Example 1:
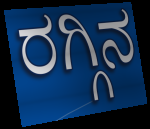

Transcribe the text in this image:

ರಗ್ಗಿನ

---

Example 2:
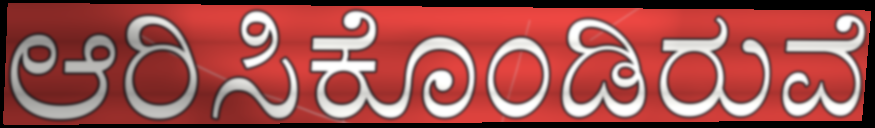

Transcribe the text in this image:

ಆರಿಸಿಕೊಂಡಿರುವೆ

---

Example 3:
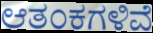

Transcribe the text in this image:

ಆತಂಕಗಳಿವೆ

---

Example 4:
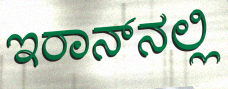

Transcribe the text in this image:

ಇರಾನ್‌ನಲ್ಲಿ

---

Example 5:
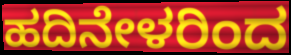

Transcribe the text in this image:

ಹದಿನೇಳರಿಂದ